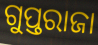
ଗୁପ୍ତରାଜା